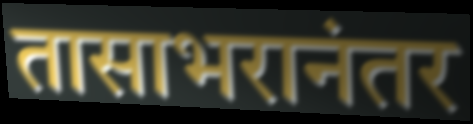
तासाभरानंतर